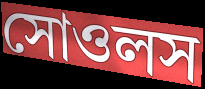
সোওলস